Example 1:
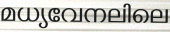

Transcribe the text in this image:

മധ്യവേനലിലെ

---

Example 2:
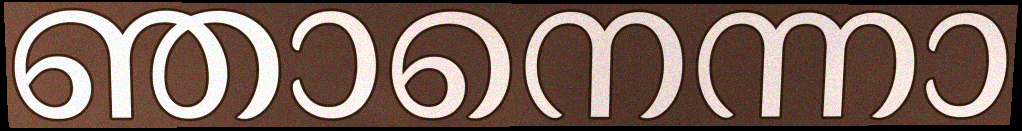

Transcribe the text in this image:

ഞാനെന്നാ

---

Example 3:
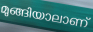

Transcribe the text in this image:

മുങ്ങിയാലാണ്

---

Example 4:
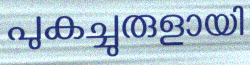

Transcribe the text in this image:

പുകച്ചുരുളായി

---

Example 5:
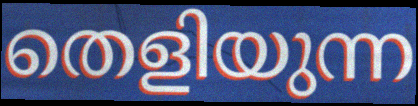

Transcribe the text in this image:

തെളിയുന്ന